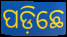
ପଡ଼ିଛେ